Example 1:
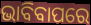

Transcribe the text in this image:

ଭାବିବାପରେ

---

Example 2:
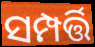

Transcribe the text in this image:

ସମ୍ପର୍ତ୍ତି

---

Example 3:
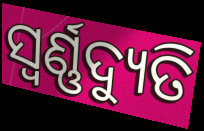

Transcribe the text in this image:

ସ୍ୱର୍ଣ୍ଣଦ୍ୟୁତି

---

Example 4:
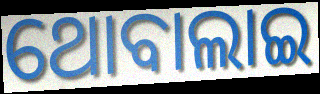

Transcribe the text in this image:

ଥୋବାଲାଇ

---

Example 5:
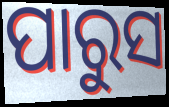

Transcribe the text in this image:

ପାରୁସ